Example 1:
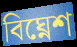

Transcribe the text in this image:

বিঘ্নেশ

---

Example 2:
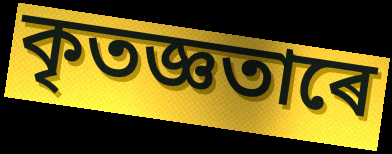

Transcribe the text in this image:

কৃতজ্ঞতাৰে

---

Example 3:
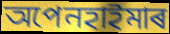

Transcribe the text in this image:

অপেনহাইমাৰ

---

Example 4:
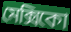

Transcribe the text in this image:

মেক্সিকো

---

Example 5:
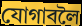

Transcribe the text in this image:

যোগাবলৈ